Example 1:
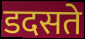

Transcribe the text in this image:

डदसते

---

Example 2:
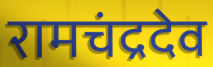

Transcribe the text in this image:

रामचंद्रदेव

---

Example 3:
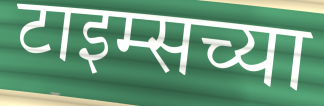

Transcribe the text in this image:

टाइम्सच्या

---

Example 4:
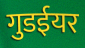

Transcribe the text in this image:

गुडईयर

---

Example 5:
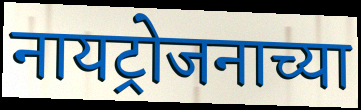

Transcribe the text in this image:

नायट्रोजनाच्या